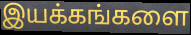
இயக்கங்களை